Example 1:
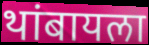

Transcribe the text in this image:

थांबायला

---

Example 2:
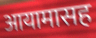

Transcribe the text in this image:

आयामासह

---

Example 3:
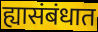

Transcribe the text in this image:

ह्यासंबंधात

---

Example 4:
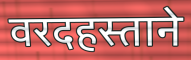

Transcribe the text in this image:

वरदहस्ताने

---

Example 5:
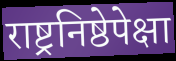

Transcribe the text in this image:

राष्ट्रनिष्ठेपेक्षा